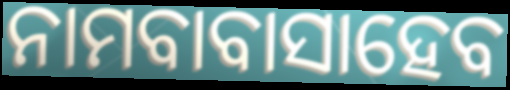
ନାମବାବାସାହେବ